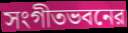
সংগীতভবনের